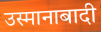
उस्मानाबादी